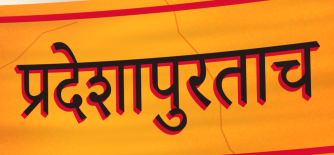
प्रदेशापुरताच